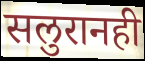
सलुरानही